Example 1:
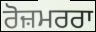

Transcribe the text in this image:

ਰੋਜ਼ਮਰਰਾ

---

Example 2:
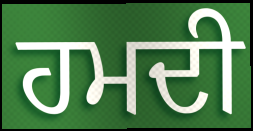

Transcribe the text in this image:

ਹਮਦੀ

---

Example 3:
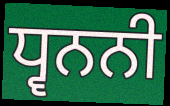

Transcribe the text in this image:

ਧ੍ਵਨਨੀ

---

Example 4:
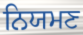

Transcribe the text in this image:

ਨਿਯਮਣ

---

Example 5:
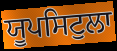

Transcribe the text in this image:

ਯੂਪਸਿਟੁਲਾ